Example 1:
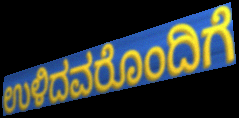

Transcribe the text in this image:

ಉಳಿದವರೊಂದಿಗೆ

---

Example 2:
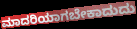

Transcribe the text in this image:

ಮಾದರಿಯಾಗಬೇಕಾದುದು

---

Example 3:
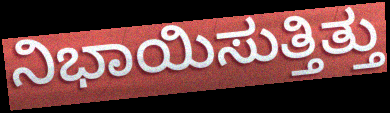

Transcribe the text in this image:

ನಿಭಾಯಿಸುತ್ತಿತ್ತು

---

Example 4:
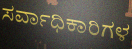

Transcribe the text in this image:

ಸರ್ವಾಧಿಕಾರಿಗಳ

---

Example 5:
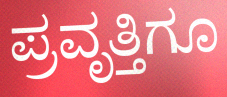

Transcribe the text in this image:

ಪ್ರವೃತ್ತಿಗೂ